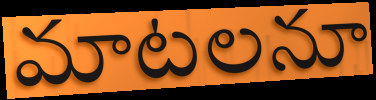
మాటలనూ